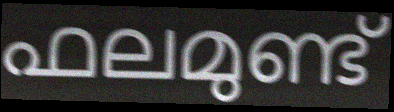
ഫലമുണ്ട്